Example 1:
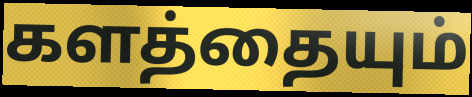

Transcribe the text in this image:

களத்தையும்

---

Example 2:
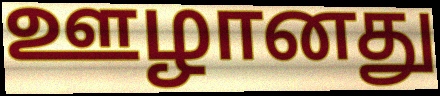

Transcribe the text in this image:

ஊழானது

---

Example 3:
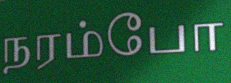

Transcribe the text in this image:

நரம்போ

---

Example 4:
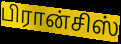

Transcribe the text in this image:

பிரான்சிஸ்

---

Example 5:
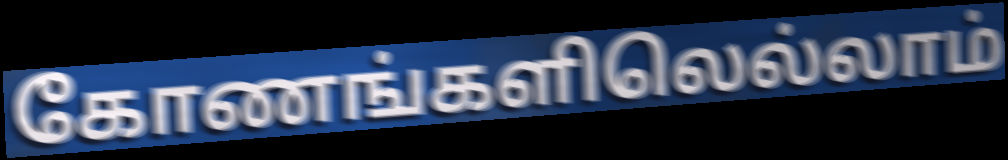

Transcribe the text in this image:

கோணங்களிலெல்லாம்